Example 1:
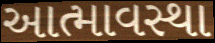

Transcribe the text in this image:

આત્માવસ્થા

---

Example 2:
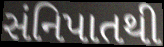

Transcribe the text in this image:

સંનિપાતથી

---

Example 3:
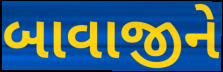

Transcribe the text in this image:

બાવાજીને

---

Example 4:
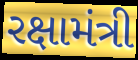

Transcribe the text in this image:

રક્ષામંત્રી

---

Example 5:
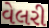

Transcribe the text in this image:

વેલરી